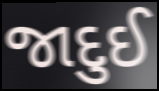
જાદુઈ